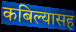
कबिल्यासह